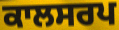
ਕਾਲਸਰਪ